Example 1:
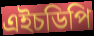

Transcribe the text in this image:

এইচডিপি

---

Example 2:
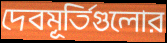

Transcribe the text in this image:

দেবমূর্তিগুলোর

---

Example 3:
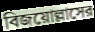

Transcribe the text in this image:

বিজয়োল্লাসের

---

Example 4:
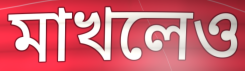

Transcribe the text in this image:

মাখলেও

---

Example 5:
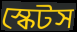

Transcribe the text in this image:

স্কেটস